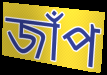
জাঁপ